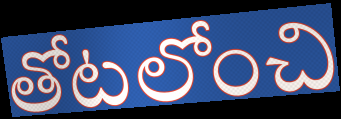
తోటలోంచి